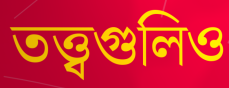
তত্ত্বগুলিও